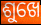
ଶୁଖେ